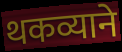
थकव्याने